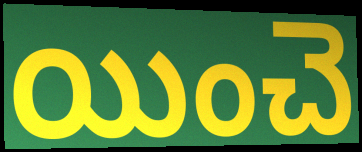
యించె